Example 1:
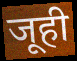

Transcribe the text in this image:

जूही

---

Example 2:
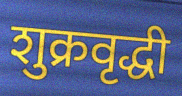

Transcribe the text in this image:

शुक्रवृद्धी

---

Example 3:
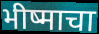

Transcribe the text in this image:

भीष्माचा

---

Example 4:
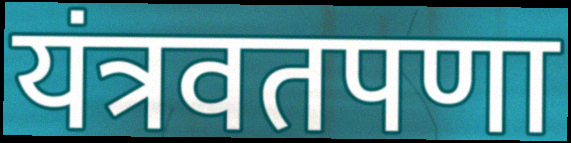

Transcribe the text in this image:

यंत्रवतपणा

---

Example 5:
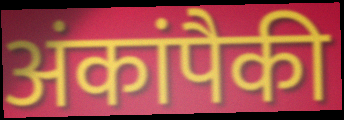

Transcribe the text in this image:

अंकांपैकी